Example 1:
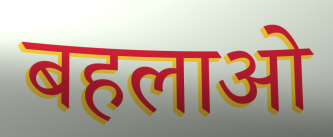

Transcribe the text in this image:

बहलाओ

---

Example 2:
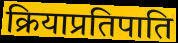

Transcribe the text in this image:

क्रियाप्रतिपाति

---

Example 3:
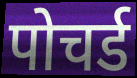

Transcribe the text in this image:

पोचर्ड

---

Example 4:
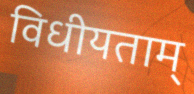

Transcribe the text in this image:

विधीयताम्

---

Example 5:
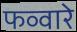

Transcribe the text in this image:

फव्‍वारे